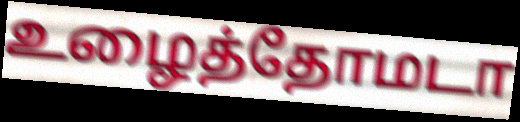
உழைத்தோமடா